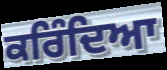
ਕਰਿੰਦਿਆ